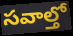
సవాల్తో